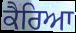
ਕੈਰਿਆ